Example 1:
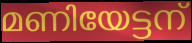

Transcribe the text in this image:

മണിയേട്ടന്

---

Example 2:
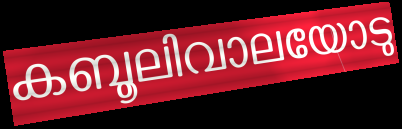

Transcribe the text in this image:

കബൂലിവാലയോടു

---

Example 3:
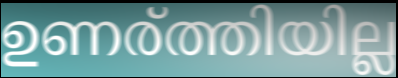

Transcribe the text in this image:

ഉണര്ത്തിയില്ല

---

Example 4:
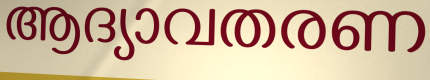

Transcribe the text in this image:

ആദ്യാവതരണ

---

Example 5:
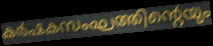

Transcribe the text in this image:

കർഷകസംഘത്തിന്റെയും